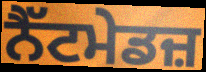
ਨੈੱਟਮੇਡਜ਼